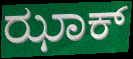
ಝಾಕ್